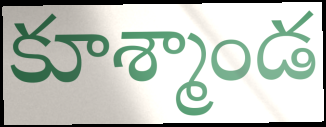
కూశ్మాండ